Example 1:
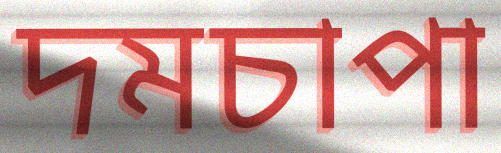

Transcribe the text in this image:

দমচাপা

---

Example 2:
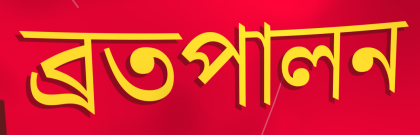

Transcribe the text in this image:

ব্রতপালন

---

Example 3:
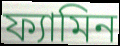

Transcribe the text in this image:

ফ্যামিন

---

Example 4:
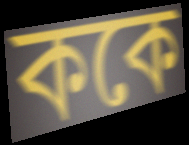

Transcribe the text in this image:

ককে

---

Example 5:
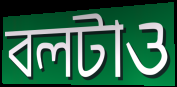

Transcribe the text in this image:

বলটাও